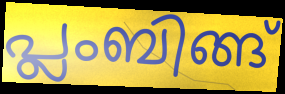
പ്ലംബിങ്ങ്